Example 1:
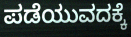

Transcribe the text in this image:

ಪಡೆಯುವದಕ್ಕೆ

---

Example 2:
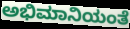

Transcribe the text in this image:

ಅಭಿಮಾನಿಯಂತೆ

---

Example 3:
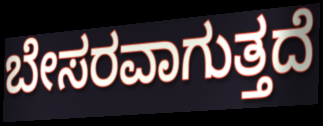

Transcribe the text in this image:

ಬೇಸರವಾಗುತ್ತದೆ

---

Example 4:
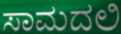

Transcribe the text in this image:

ಸಾಮದಲಿ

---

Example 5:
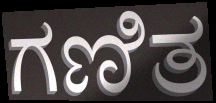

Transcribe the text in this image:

ಗಣಿತ